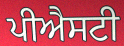
ਪੀਐਸਟੀ